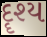
દૄશ્ય